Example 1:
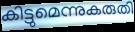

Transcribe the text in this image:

കിട്ടുമെന്നുകരുതി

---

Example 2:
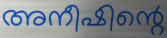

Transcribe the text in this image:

അനീഷിന്റെ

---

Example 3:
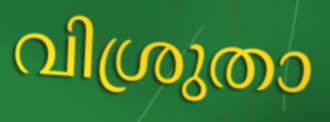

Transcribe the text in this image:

വിശ്രുതാ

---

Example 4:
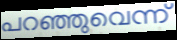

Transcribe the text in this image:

പറഞ്ഞുവെന്ന്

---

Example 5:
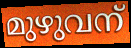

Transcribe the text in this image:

മുഴുവന്